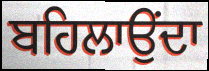
ਬਹਿਲਾਉਂਦਾ